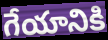
గేయానికి